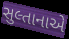
સુલ્તાનાએ